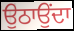
ਉਠਾਉਂਦਾ